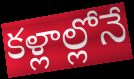
కళ్లాల్లోనే